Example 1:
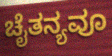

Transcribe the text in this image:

ಚೈತನ್ಯವೂ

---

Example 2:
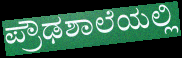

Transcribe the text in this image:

ಪ್ರೌಢಶಾಲೆಯಲ್ಲಿ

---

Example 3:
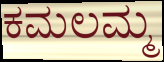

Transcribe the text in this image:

ಕಮಲಮ್ಮ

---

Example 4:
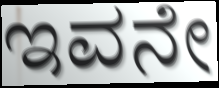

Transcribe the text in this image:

ಇವನೇ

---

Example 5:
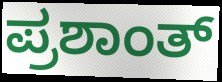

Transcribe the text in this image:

ಪ್ರಶಾಂತ್